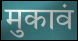
मुकावं